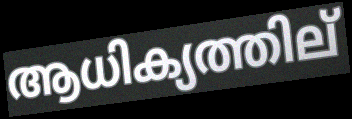
ആധിക്യത്തില്